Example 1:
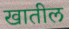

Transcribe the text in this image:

खातील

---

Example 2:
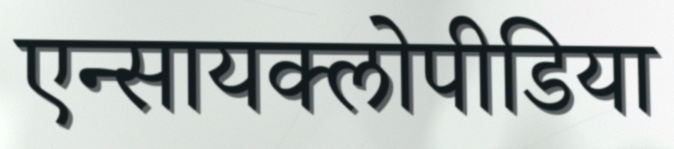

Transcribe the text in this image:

एन्सायक्लोपीडिया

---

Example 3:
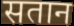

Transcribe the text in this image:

सतान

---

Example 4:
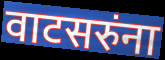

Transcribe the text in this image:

वाटसरुंना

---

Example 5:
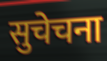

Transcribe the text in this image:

सुचेचना